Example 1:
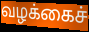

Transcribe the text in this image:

வழக்கைச்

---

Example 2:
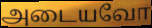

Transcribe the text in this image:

அடையவோ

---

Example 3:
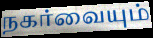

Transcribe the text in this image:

நகர்வையும்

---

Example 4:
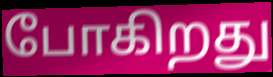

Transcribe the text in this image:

போகிறது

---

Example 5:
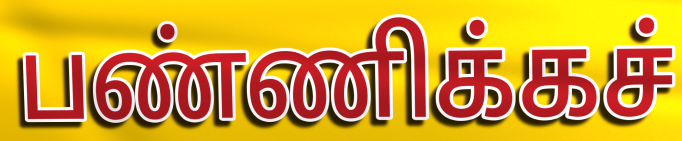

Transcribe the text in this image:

பண்ணிக்கச்